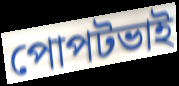
পোপটভাই